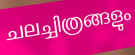
ചലച്ചിത്രങ്ങളും